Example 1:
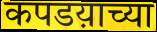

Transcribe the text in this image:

कपडय़ाच्या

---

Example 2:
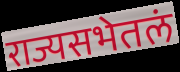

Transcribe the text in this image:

राज्यसभेतलं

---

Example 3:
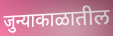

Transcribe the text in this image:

जुन्याकाळातील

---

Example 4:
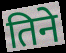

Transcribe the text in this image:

तिने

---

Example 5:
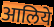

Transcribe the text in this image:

आलिये